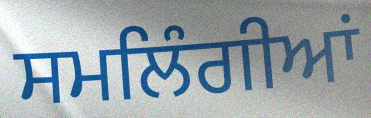
ਸਮਲਿੰਗੀਆਂ